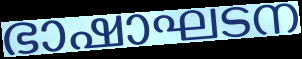
ഭാഷാഘടന